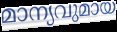
മാന്യവുമായ